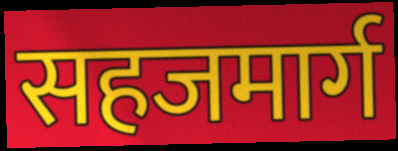
सहजमार्ग